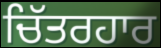
ਚਿੱਤਰਹਾਰ